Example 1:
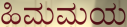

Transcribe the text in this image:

ಹಿಮಮಯ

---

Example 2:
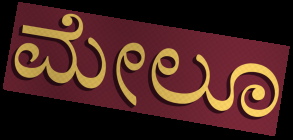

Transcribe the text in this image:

ಮೇಲೂ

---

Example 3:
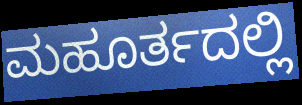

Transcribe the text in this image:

ಮಹೂರ್ತದಲ್ಲಿ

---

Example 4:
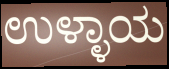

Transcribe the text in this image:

ಉಳ್ಳಾಯ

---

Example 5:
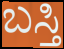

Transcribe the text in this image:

ಬಸ್ತಿ